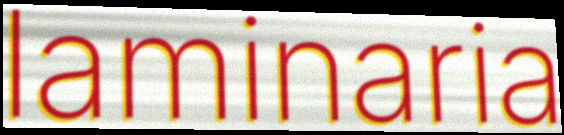
laminaria